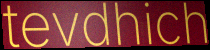
tevdhich